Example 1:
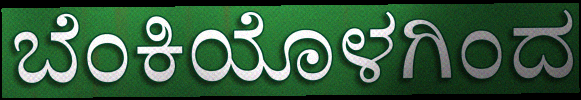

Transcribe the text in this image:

ಬೆಂಕಿಯೊಳಗಿಂದ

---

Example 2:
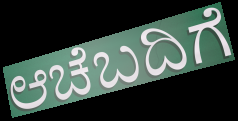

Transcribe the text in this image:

ಆಚೆಬದಿಗೆ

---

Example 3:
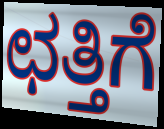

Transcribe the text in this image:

ಛತ್ತಿಗೆ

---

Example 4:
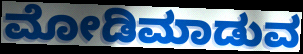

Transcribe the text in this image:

ಮೋಡಿಮಾಡುವ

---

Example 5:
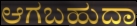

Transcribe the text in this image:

ಆಗಬಹುದಾ